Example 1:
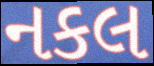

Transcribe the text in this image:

નકલ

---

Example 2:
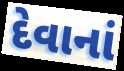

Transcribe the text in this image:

દેવાનાં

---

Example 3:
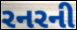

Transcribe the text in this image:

રનરની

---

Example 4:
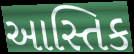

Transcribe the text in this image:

આસ્તિક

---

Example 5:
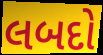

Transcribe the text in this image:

લબદો